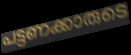
പട്ടണക്കാരുടെ